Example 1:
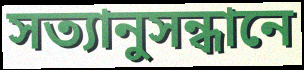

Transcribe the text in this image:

সত্যানুসন্ধানে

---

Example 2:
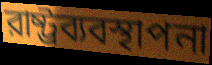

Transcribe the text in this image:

রাষ্ট্রব্যবস্থাপনা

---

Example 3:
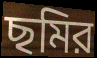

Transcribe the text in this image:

ছমির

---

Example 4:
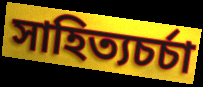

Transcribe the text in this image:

সাহিত্যচর্চা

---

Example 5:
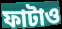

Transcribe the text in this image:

ফাটাও